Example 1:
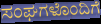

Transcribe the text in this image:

ಸಂಘಗಳೊಂದಿಗೆ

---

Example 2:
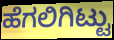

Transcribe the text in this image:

ಹೆಗಲಿಗಿಟ್ಟು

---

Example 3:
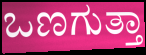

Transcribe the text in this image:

ಒಣಗುತ್ತಾ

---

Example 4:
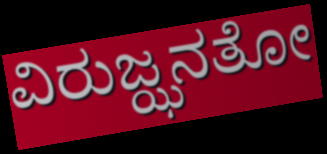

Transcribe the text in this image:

ವಿರುಜ್ಝನತೋ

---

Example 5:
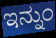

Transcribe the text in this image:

ಇನ್ನುಂ